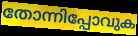
തോന്നിപ്പോവുക